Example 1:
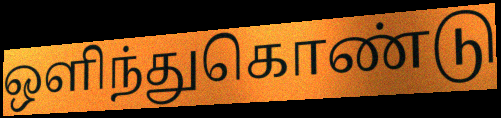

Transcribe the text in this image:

ஒளிந்துகொண்டு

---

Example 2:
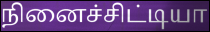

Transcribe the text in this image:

நினைச்சிட்டியா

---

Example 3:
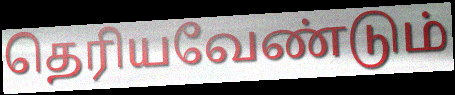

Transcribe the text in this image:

தெரியவேண்டும்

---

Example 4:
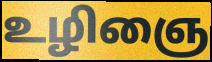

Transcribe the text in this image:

உழிஞை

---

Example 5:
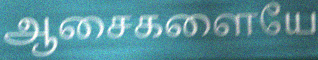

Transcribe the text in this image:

ஆசைகளையே